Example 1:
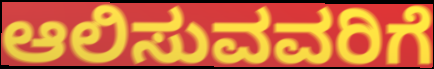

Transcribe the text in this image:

ಆಲಿಸುವವರಿಗೆ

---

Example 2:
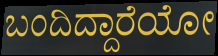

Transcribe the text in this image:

ಬಂದಿದ್ದಾರೆಯೋ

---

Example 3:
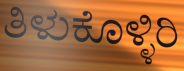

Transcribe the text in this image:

ತಿಳುಕೊಳ್ಳಿರಿ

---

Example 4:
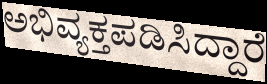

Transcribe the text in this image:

ಅಭಿವ್ಯಕ್ತಪಡಿಸಿದ್ದಾರೆ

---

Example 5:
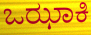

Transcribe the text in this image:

ಒಝಾಕಿ